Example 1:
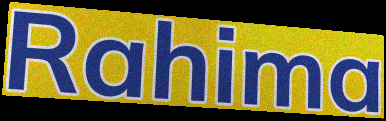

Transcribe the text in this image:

Rahima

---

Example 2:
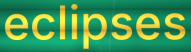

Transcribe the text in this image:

eclipses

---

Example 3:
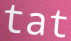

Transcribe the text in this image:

tat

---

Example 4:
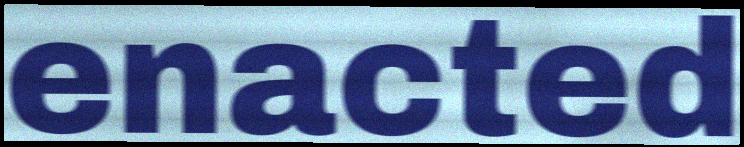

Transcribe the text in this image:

enacted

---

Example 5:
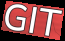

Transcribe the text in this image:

GIT